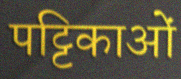
पट्टिकाओं